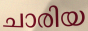
ചാരിയ